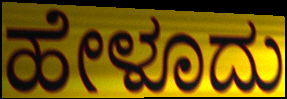
ಹೇಳೂದು